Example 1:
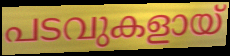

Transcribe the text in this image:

പടവുകളായ്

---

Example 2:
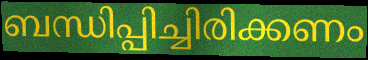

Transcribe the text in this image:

ബന്ധിപ്പിച്ചിരിക്കണം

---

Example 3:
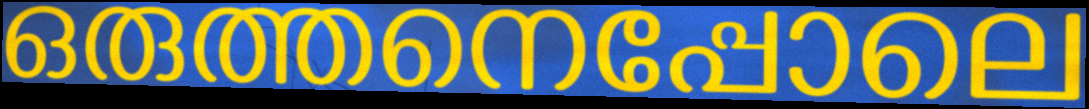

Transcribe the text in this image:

ഒരുത്തനെപ്പോലെ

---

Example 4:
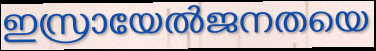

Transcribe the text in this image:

ഇസ്രായേൽജനതയെ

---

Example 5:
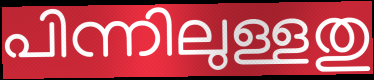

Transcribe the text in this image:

പിന്നിലുള്ളതു